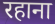
रहाना